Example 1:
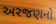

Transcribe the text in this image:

અરજણનો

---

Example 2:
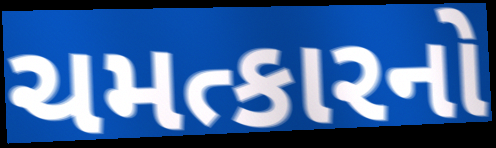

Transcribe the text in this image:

ચમત્કારનો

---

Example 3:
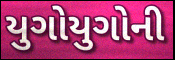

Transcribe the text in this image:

યુગોયુગોની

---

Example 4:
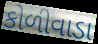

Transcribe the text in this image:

કોળીવાડા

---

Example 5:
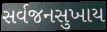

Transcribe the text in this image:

સર્વજનસુખાય